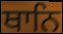
ਥਾਨਿ